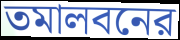
তমালবনের